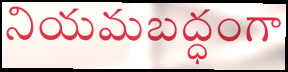
నియమబద్ధంగా